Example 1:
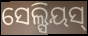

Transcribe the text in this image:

ସେଲ୍ସିୟସ୍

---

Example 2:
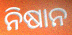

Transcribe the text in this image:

ନିଷାନ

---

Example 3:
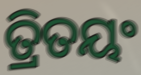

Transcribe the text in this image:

ତ୍ରିତୟଂ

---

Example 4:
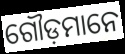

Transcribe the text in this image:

ଗୌଡ଼ମାନେ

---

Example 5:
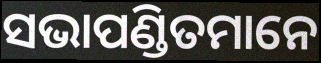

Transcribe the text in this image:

ସଭାପଣ୍ଡିତମାନେ